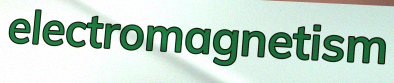
electromagnetism